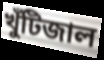
খুঁটিজাল